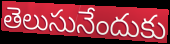
తెలుసునేందుకు